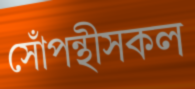
সোঁপন্থীসকল